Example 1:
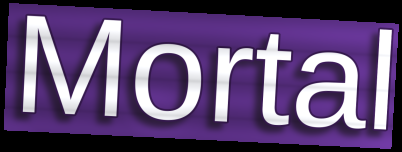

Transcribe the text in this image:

Mortal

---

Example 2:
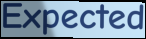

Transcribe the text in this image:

Expected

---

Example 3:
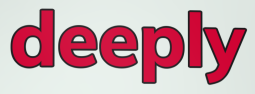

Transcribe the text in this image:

deeply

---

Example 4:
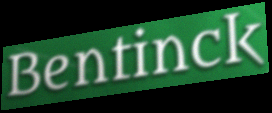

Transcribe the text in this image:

Bentinck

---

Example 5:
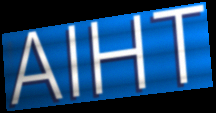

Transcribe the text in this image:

AIHT